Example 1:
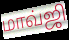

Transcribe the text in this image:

மாவ்ஜி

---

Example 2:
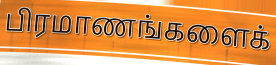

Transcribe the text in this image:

பிரமாணங்களைக்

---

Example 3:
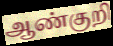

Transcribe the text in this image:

ஆண்குறி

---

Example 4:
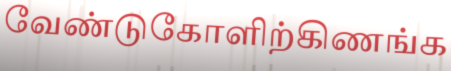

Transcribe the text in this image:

வேண்டுகோளிற்கிணங்க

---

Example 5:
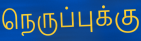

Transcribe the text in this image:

நெருப்புக்கு